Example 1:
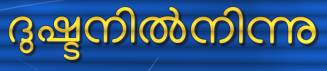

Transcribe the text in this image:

ദുഷ്ടനിൽനിന്നു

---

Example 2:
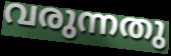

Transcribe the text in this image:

വരുന്നതു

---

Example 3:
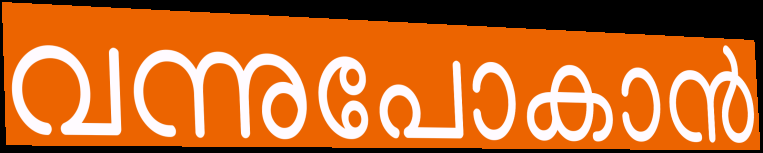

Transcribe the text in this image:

വന്നുപോകാൻ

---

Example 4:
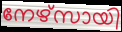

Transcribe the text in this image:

നേഴ്സായി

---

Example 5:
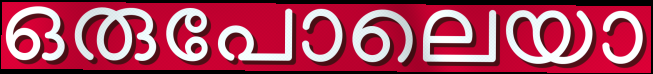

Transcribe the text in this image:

ഒരുപോലെയാ